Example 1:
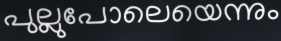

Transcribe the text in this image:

പുല്ലുപോലെയെന്നും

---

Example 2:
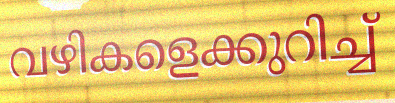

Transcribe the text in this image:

വഴികളെക്കുറിച്ച്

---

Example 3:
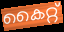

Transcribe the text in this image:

കൈറ്റ്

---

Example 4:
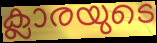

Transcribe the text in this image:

ക്ലാരയുടെ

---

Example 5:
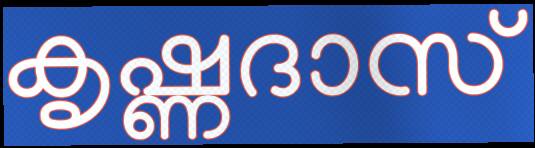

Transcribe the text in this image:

കൃഷ്ണദാസ്